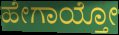
ಹೇಗಾಯ್ತೋ